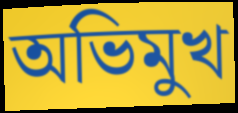
অভিমুখ